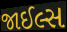
જાઈલ્સ